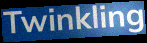
Twinkling